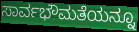
ಸಾರ್ವಭೌಮತೆಯನ್ನೂ